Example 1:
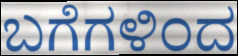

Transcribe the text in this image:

ಬಗೆಗಳಿಂದ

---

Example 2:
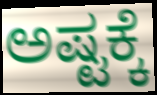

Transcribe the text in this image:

ಅಷ್ಟಕ್ಕೆ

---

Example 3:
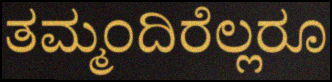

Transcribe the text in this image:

ತಮ್ಮಂದಿರೆಲ್ಲರೂ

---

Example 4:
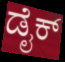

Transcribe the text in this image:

ಡೈಕ್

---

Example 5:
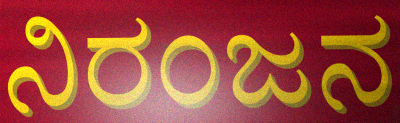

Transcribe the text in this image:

ನಿರಂಜನ